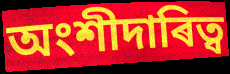
অংশীদাৰিত্ব